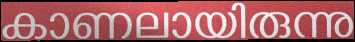
കാണലായിരുന്നു